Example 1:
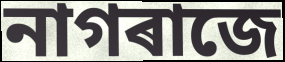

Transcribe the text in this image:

নাগৰাজে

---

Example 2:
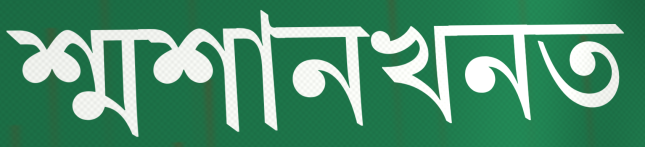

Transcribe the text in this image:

শ্মশানখনত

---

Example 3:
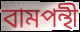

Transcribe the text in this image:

বামপন্থী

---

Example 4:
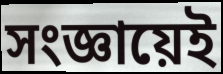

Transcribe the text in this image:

সংজ্ঞায়েই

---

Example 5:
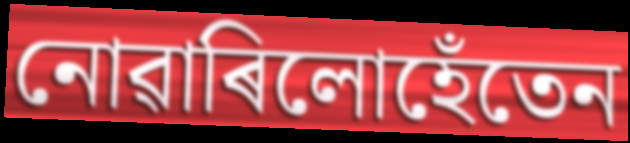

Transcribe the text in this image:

নোৱাৰিলোহেঁতেন